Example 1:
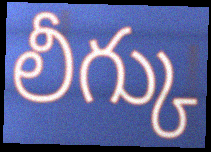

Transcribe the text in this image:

లీగ్కు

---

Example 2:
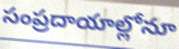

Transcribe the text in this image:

సంప్రదాయాల్లోనూ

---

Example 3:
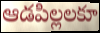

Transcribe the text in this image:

ఆడపిల్లలకూ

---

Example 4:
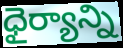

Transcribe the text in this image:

ధైర్యాన్ని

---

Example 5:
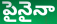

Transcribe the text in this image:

పైనైనా